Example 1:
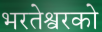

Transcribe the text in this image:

भरतेश्वरको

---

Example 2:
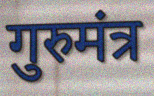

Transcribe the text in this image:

गुरुमंत्र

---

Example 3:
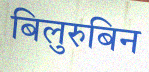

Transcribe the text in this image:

बिलुरुबिन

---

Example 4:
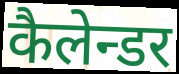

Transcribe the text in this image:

कैलेन्डर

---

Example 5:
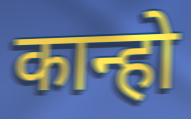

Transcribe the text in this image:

कान्हो